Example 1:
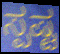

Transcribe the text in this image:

ಸ್ಪಷ್ಟ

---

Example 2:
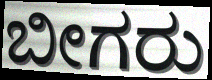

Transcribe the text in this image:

ಬೀಗರು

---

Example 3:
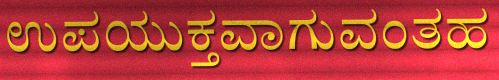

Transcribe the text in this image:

ಉಪಯುಕ್ತವಾಗುವಂತಹ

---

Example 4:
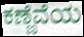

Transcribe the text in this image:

ಕಣ್ಣೆವೆಯ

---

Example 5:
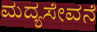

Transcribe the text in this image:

ಮದ್ಯಸೇವನೆ